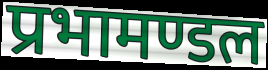
प्रभामण्डल